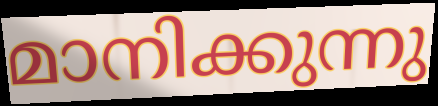
മാനിക്കുന്നു